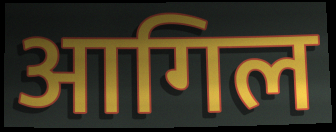
आगिल